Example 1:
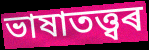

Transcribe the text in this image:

ভাষাতত্ত্বৰ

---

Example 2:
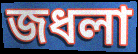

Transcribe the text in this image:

জধলা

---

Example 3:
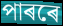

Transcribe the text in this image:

পাৰৰে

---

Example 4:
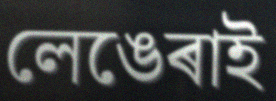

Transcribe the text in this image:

লেঙেৰাই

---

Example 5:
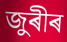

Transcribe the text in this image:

জুৰীৰ